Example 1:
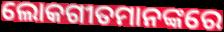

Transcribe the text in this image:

ଲୋକଗୀତମାନଙ୍କରେ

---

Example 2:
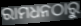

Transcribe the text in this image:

ରାମଧନଠାରୁ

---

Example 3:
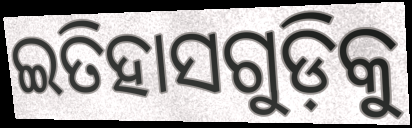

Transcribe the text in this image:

ଇତିହାସଗୁଡ଼ିକୁ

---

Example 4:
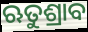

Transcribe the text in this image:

ଋତୁଶ୍ରାବ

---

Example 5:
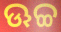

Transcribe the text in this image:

ଊଚ୍ଚ